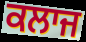
ਕਲਾਜ